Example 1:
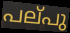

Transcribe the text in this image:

പല്‌പു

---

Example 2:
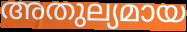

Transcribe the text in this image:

അതുല്യമായ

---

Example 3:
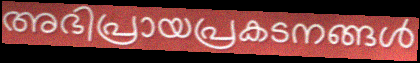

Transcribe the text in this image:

അഭിപ്രായപ്രകടനങ്ങൾ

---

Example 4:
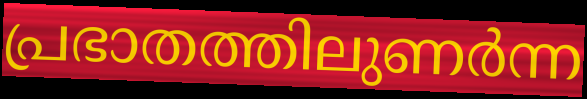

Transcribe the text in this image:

പ്രഭാതത്തിലുണർന്ന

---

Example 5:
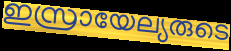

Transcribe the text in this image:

ഇസ്രായേല്യരുടെ